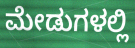
ಮೇಡುಗಳಲ್ಲಿ